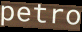
petro